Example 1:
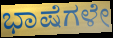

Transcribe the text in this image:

ಭಾಷೆಗಳೇ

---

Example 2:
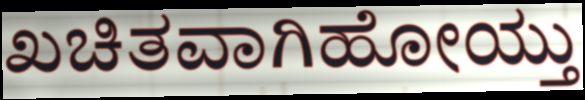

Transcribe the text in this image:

ಖಚಿತವಾಗಿಹೋಯ್ತು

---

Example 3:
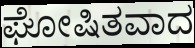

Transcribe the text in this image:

ಘೋಷಿತವಾದ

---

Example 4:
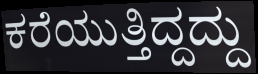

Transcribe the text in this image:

ಕರೆಯುತ್ತಿದ್ದದ್ದು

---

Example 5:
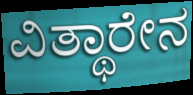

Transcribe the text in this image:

ವಿತ್ಥಾರೇನ